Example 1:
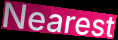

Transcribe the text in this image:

Nearest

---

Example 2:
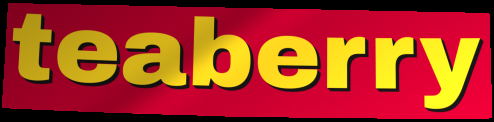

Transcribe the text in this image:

teaberry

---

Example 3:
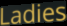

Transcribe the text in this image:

Ladies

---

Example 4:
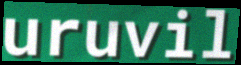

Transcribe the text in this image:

uruvil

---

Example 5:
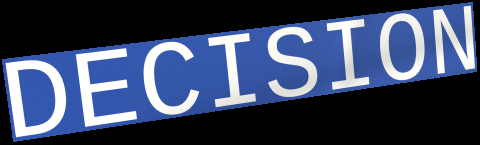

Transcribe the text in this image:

DECISION